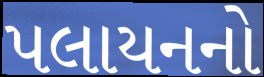
પલાયનનો